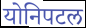
योनिपटल